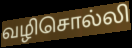
வழிசொல்லி